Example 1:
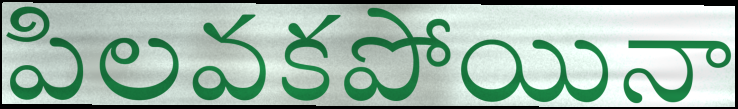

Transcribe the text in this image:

పిలవకపోయినా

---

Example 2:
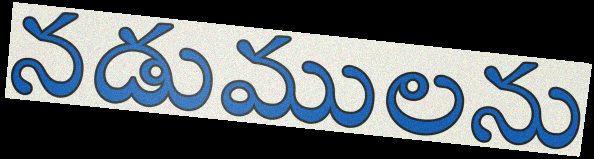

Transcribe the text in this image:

నడుములను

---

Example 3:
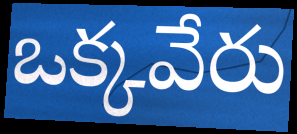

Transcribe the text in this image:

ఒక్కవేరు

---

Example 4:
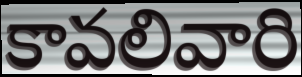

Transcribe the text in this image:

కావలివారి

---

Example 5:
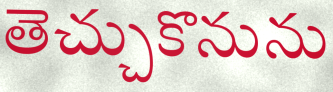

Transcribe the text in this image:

తెచ్చుకొనును